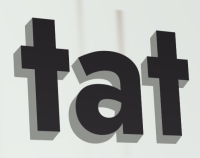
tat